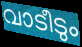
വാടീടും